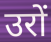
उरों